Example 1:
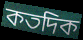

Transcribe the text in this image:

কতদিক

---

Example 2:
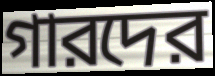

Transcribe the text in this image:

গারদের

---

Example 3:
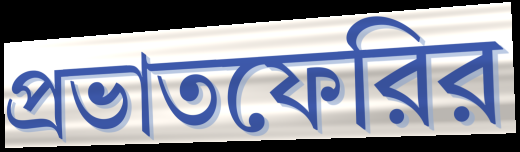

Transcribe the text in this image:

প্রভাতফেরির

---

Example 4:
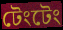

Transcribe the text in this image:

টেংটেং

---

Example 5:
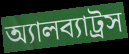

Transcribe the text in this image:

অ্যালব্যাট্রস